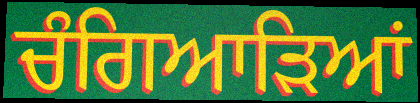
ਚੰਗਿਆੜਿਆਂ